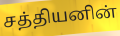
சத்தியனின்